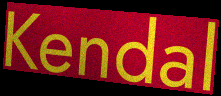
Kendal